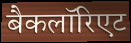
बैकलॉरिएट